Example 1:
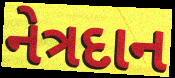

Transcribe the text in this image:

નેત્રદાન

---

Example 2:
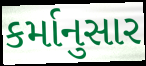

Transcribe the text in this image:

કર્માનુસાર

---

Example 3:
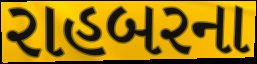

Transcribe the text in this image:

રાહબરના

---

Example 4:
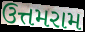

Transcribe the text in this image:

ઉત્તમરામ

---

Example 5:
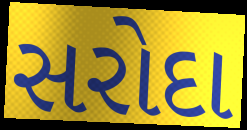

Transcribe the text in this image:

સરોદા